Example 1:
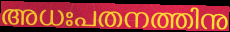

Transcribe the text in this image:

അധഃപതനത്തിനു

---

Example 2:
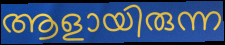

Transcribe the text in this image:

ആളായിരുന്ന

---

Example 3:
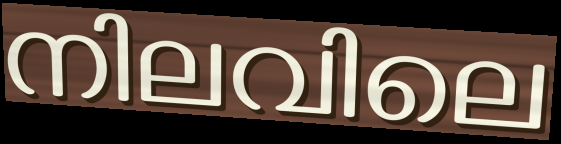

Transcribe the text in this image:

നിലവിലെ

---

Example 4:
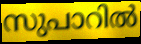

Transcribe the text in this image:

സുപാറിൽ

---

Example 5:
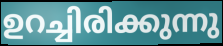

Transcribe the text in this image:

ഉറച്ചിരിക്കുന്നു